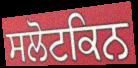
ਸਲੋਟਕਿਨ